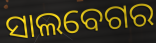
ସାଲବେଗର